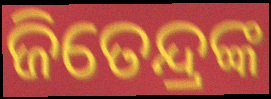
ଜିତେନ୍ଦ୍ରଙ୍କ